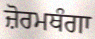
ਜ਼ੋਰਮਥੰਗਾ